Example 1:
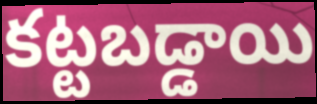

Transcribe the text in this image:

కట్టబడ్డాయి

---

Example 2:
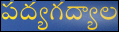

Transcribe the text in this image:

పద్యగద్యాల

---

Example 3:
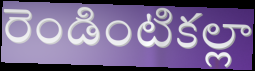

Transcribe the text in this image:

రెండింటికల్లా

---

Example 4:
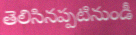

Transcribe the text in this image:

తెలిసినప్పటినుండీ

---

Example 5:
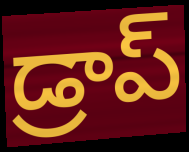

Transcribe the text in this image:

డ్రాప్